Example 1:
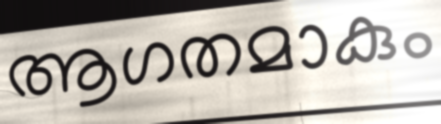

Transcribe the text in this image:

ആഗതമാകും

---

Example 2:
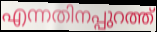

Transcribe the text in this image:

എന്നതിനപ്പുറത്ത്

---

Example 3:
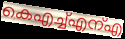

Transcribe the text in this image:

കെഎച്ച്എന്എ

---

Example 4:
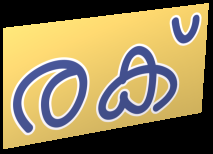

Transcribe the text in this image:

രക്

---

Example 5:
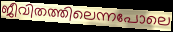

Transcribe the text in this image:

ജീവിതത്തിലെന്നപോലെ